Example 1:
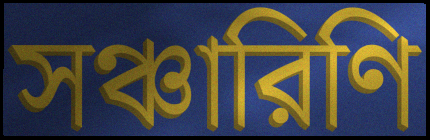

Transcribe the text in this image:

সঞ্চারিণি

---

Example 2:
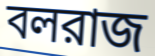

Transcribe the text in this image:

বলরাজ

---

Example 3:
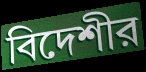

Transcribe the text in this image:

বিদেশীর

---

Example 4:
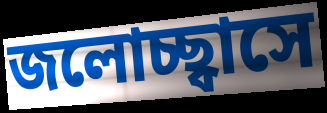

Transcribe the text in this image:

জলোচ্ছ্বাসে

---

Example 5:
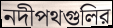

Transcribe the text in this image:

নদীপথগুলির